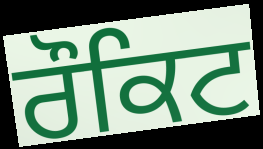
ਰੌਕਿਟ